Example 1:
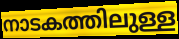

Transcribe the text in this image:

നാടകത്തിലുള്ള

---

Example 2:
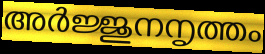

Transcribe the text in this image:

അർജ്ജുനനൃത്തം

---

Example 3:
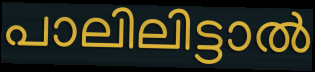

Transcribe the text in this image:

പാലിലിട്ടാൽ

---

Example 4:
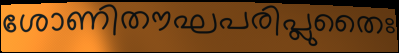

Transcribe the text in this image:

ശോണിതൗഘപരിപ്ലുതൈഃ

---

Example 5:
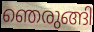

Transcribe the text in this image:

ഞെരുങ്ങി